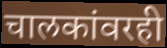
चालकांवरही